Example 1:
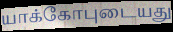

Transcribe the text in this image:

யாக்கோபுடையது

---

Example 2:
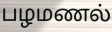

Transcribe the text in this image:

பழமணல்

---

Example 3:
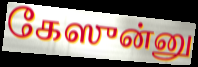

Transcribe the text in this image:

கேஸுன்னு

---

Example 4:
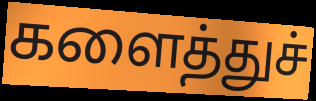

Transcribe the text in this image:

களைத்துச்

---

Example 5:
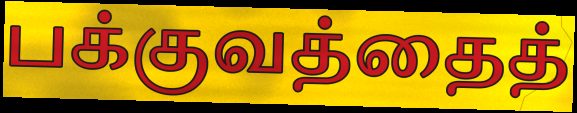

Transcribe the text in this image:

பக்குவத்தைத்